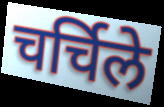
चर्चिले